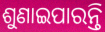
ଶୁଣାଇପାରନ୍ତି